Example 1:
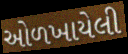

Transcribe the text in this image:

ઓળખાયેલી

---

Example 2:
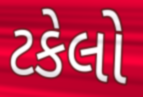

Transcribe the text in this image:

ટકેલો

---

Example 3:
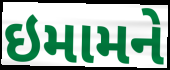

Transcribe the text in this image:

ઇમામને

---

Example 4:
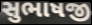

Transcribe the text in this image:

સુભાષજી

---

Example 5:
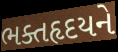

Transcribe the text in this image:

ભક્તહૃદયને